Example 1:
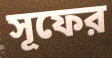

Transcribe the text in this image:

সূফের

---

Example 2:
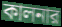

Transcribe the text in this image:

কালনার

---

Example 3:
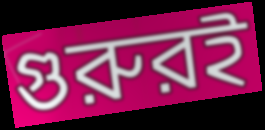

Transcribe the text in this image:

গুরুরই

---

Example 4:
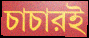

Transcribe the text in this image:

চাচারই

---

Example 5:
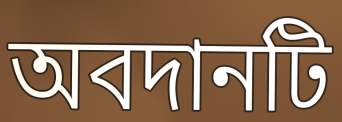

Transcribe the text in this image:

অবদানটি